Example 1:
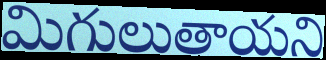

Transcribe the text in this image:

మిగులుతాయని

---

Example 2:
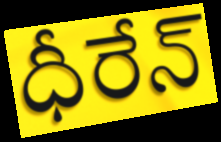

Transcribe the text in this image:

ధీరేన్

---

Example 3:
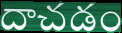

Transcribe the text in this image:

దాచడం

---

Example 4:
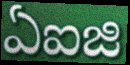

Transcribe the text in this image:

ఏఐజి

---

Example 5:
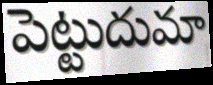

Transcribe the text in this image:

పెట్టుదుమా